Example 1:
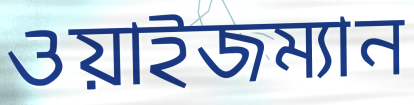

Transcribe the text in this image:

ওয়াইজম্যান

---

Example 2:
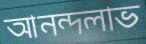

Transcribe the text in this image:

আনন্দলাভ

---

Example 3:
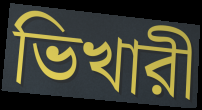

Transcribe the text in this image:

ভিখারী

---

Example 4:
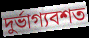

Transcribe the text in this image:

দুর্ভাগ্যবশত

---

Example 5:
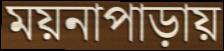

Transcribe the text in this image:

ময়নাপাড়ায়